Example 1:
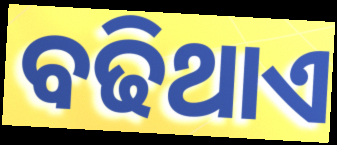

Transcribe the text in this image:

ବଢିଥାଏ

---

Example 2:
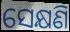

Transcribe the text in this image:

ସେକ୍ଷଣି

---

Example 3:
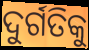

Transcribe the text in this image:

ଦୁର୍ଗତିକୁ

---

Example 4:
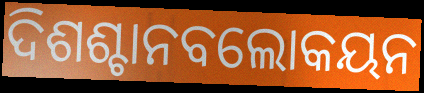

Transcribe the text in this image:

ଦିଶଶ୍ଚାନବଲୋକୟନ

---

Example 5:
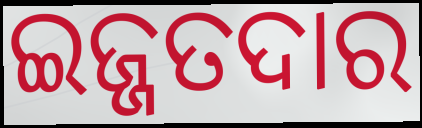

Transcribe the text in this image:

ଇଜ୍ଜତଦାର